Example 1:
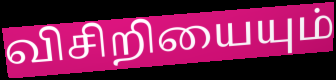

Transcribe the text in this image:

விசிறியையும்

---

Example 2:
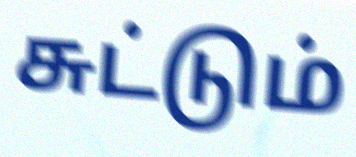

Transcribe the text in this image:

சுட்டும்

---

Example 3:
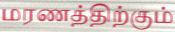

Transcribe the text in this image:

மரணத்திற்கும்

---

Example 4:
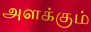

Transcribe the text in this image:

அளக்கும்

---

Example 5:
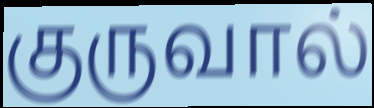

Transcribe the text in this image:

குருவால்